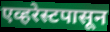
एव्हरेस्टपासून